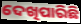
ଦେଖିପାରିଛି